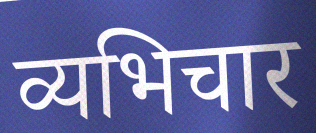
व्यभिचार